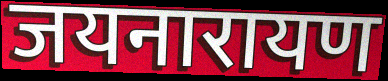
जयनारायण